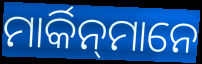
ମାର୍କିନ୍‌ମାନେ